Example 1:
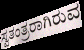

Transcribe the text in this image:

ಸ್ವತಂತ್ರರಾಗಿರುವ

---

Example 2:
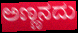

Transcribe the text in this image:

ಅಣ್ಣನದು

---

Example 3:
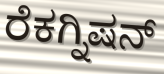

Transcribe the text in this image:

ರೆಕಗ್ನಿಷನ್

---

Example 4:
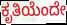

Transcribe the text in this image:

ಕೃತಿಯೆಂದೇ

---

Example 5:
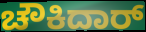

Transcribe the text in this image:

ಚೌಕಿದಾರ್